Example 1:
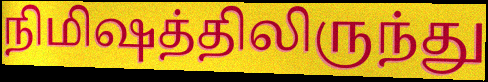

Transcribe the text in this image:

நிமிஷத்திலிருந்து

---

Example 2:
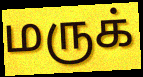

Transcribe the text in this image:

மருக்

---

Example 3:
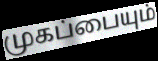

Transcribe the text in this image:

முகப்பையும்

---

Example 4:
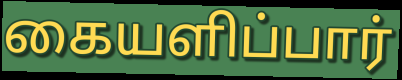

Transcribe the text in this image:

கையளிப்பார்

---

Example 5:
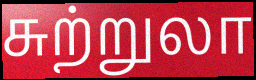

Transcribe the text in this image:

சுற்றுலா